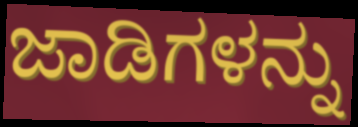
ಜಾಡಿಗಳನ್ನು